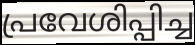
പ്രവേശിപ്പിച്ച